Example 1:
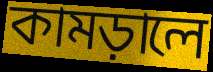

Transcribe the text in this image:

কামড়ালে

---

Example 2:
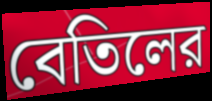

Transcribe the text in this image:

বেতিলের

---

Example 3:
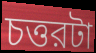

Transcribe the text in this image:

চত্তরটা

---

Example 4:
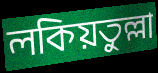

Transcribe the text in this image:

লকিয়তুল্লা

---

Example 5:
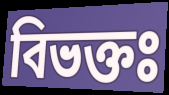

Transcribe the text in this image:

বিভক্তঃ